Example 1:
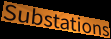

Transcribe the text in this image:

Substations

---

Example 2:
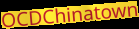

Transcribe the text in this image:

OCDChinatown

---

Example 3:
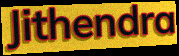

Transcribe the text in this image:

Jithendra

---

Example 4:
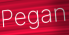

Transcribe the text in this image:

Pegan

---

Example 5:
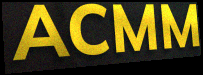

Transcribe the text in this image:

ACMM